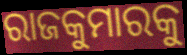
ରାଜକୁମାରକୁ